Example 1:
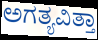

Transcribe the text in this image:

ಅಗತ್ಯವಿತ್ತಾ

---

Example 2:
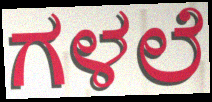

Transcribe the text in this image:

ಗಳಲೆ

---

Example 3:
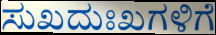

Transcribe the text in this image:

ಸುಖದುಃಖಗಳಿಗೆ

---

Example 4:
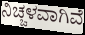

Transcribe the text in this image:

ನಿಚ್ಚಳವಾಗಿವೆ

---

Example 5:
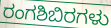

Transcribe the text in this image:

ರಂಗಶಿಬಿರಗಳು